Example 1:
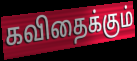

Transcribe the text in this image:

கவிதைக்கும்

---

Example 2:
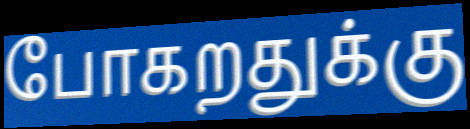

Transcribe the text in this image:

போகறதுக்கு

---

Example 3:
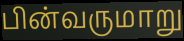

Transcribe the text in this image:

பின்வருமாறு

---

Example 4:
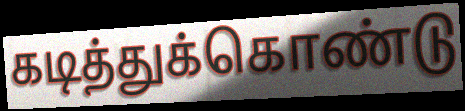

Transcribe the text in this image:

கடித்துக்கொண்டு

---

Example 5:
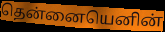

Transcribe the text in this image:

தென்னையெனின்